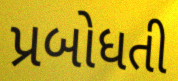
પ્રબોધતી